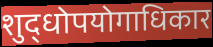
शुद्धोपयोगाधिकार